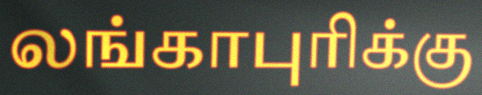
லங்காபுரிக்கு